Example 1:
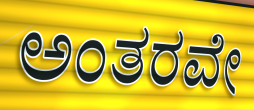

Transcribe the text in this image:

ಅಂತರವೇ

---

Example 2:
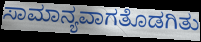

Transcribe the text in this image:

ಸಾಮಾನ್ಯವಾಗತೊಡಗಿತು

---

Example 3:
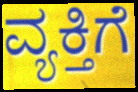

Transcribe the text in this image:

ವ್ಯಕ್ತಿಗೆ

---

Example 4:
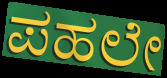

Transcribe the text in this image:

ಪಹಲೇ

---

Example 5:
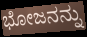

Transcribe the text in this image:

ಭೋಜನನ್ನು